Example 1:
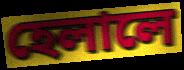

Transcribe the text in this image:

হেলালে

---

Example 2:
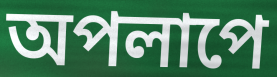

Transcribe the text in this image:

অপলাপে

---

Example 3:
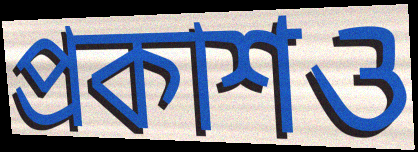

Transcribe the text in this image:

প্রকাশও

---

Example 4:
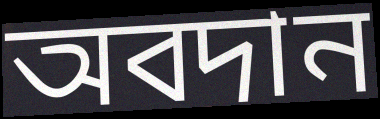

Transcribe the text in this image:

অবদান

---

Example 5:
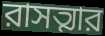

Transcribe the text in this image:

রাসত্মার